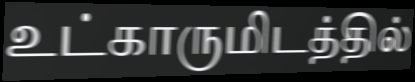
உட்காருமிடத்தில்